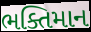
ભક્તિમાન